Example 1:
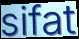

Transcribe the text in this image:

sifat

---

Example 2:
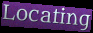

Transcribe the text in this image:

Locating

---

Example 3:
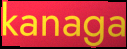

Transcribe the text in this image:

kanaga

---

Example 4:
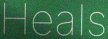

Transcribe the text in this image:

Heals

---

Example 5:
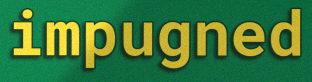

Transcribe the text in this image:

impugned